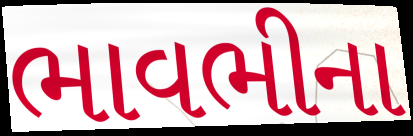
ભાવભીના